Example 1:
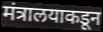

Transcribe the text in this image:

मंत्रालयाकडून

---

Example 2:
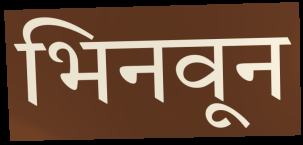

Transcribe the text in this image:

भिनवून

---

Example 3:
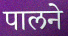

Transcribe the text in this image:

पालने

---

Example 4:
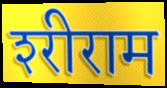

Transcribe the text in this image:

श्रीराम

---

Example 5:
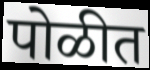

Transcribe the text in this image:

पोळीत